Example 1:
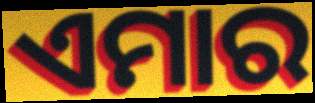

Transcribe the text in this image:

ଏମାର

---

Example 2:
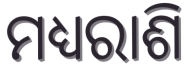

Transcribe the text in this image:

ମଧ୍ୟରାଶି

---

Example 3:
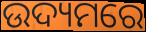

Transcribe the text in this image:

ଉଦ୍ୟମରେ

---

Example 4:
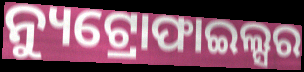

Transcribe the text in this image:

ନ୍ୟୁଟ୍ରୋଫାଇଲ୍ସର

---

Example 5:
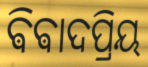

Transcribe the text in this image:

ଵିଵାଦପ୍ରିୟ